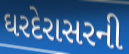
ઘરદેરાસરની